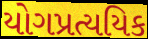
યોગપ્રત્યયિક